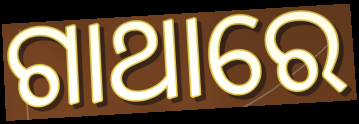
ଗାଥାରେ